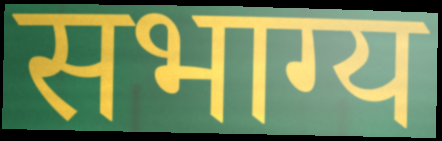
सभाग्य